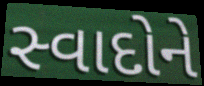
સ્વાદોને